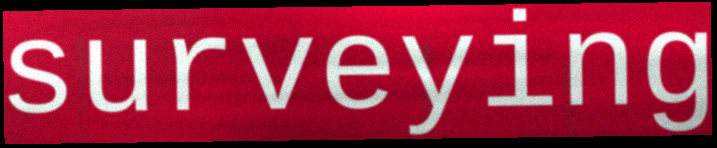
surveying